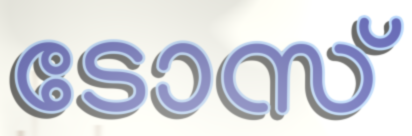
ടോസ്